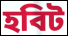
হবিট